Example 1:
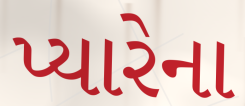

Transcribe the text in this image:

પ્યારેના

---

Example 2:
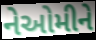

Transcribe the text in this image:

નેઓમીને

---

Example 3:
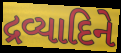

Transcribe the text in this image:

દ્રવ્યાદિને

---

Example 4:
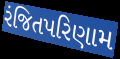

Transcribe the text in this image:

રંજિતપરિણામ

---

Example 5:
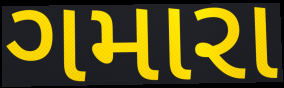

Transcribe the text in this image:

ગમારા